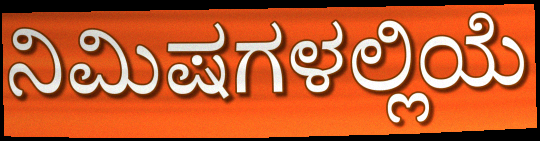
ನಿಮಿಷಗಳಲ್ಲಿಯೆ